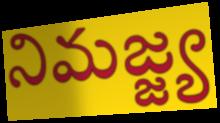
నిమజ్జ్య